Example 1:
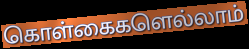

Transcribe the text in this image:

கொள்கைகளெல்லாம்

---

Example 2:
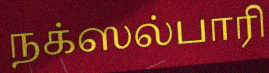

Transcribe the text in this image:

நக்ஸல்பாரி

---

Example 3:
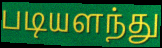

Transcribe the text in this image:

படியளந்து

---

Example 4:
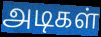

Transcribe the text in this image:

அடிகள்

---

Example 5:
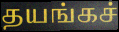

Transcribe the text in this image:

தயங்கச்